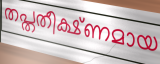
തപ്തതീക്ഷ്ണമായ